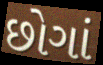
છોગાં